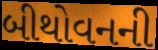
બીથોવનની